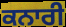
ਕਨਾਰੀ